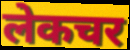
लेकचर